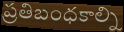
ప్రతిబంధకాల్ని